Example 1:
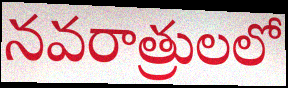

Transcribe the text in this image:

నవరాత్రులలో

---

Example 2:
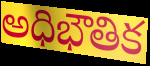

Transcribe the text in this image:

అధిభౌతిక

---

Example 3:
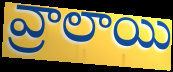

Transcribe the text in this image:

వ్రాలాయి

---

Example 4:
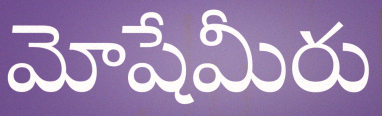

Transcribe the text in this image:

మోషేమీరు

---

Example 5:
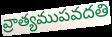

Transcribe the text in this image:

వ్రాత్యముపవదతి